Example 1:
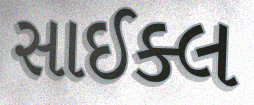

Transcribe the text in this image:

સાઈક્લ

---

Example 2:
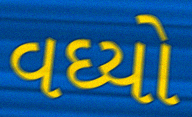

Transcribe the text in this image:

વઘ્યો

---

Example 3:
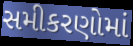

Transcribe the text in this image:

સમીકરણોમાં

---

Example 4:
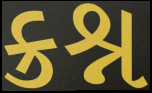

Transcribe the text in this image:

ક્રશ્ન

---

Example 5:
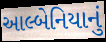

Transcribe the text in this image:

આલ્બેનિયાનું